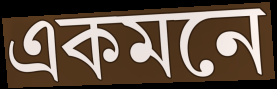
একমনে